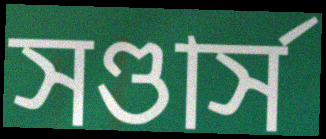
সণ্ডার্স